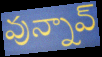
వున్నావ్